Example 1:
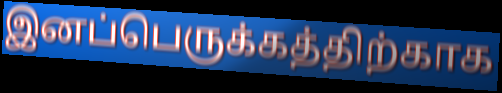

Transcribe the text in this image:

இனப்பெருக்கத்திற்காக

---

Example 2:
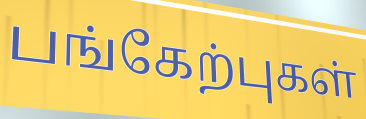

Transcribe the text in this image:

பங்கேற்புகள்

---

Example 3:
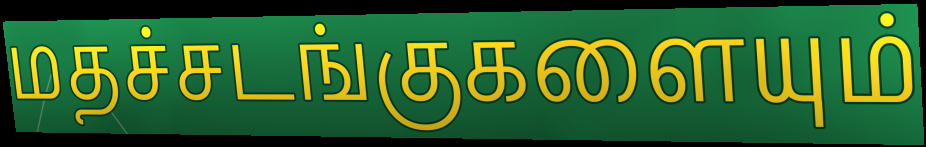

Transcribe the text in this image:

மதச்சடங்குகளையும்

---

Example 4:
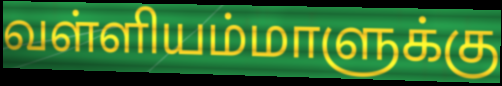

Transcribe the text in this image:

வள்ளியம்மாளுக்கு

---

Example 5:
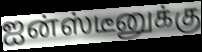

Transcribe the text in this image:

ஐன்ஸ்டீனுக்கு